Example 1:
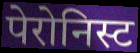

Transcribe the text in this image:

पेरोनिस्ट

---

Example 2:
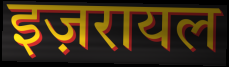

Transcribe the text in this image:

इज़रायल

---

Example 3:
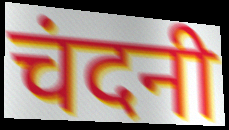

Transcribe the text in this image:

चंदनी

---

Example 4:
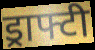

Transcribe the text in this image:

ड्राफ्टी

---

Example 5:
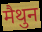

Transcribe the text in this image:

मैथुन